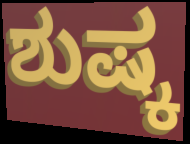
ಶುಷ್ಕ